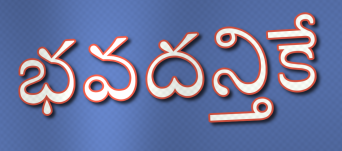
భవదన్తికే